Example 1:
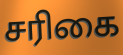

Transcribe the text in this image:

சரிகை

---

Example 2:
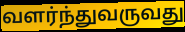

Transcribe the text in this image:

வளர்ந்துவருவது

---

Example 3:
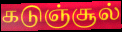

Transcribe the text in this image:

கடுஞ்சூல்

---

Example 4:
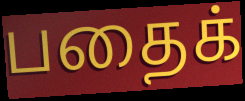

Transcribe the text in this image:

பதைக்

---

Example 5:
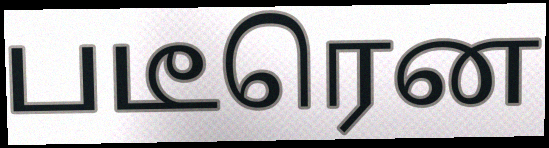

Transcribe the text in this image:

படீரென